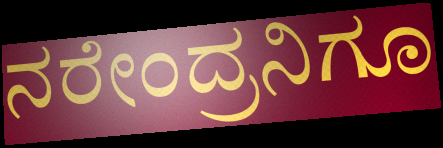
ನರೇಂದ್ರನಿಗೂ